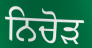
ਨਿਚੋਡ਼